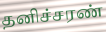
தனிச்சரண்